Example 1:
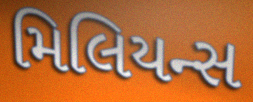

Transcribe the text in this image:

મિલિયન્સ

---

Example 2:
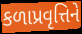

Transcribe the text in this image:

કળાપ્રવૃત્તિને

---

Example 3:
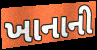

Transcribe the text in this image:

ખાનાની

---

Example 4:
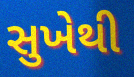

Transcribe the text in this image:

સુખેથી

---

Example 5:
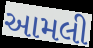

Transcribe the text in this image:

આમલી